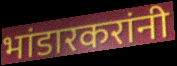
भांडारकरांनी